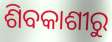
ଶିବକାଶୀରୁ